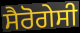
ਸੈਰੋਗੇਸੀ